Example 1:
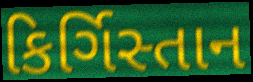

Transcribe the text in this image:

કિર્ગિસ્તાન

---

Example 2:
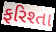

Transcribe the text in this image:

ફરિશ્તા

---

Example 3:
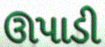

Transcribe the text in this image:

ઊપાડી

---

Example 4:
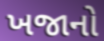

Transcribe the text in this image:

ખજાનો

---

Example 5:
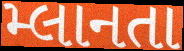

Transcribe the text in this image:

મ્લાનતા